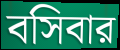
বসিবার